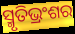
ସ୍ମୃତିଭ୍ରଂଶର